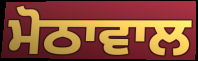
ਮੋਠਾਵਾਲ